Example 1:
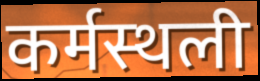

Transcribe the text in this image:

कर्मस्थली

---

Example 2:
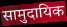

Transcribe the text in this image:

सामुदायिक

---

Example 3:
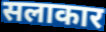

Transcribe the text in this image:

सलाकार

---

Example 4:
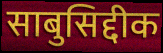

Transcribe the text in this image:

साबुसिद्दीक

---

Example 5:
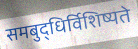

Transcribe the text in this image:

समबुद्धिर्विशिष्यते